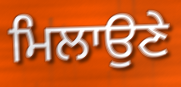
ਮਿਲਾਉਣੇ